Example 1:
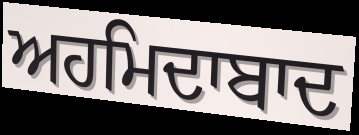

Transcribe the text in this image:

ਅਹਮਿਦਾਬਾਦ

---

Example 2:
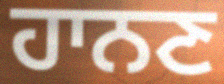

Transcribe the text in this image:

ਹਾਨਣ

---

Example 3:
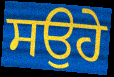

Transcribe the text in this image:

ਸਉਹੇ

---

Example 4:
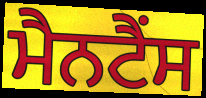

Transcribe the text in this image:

ਮੈਨਟੈਂਸ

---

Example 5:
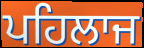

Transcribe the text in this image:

ਪਹਿਲਾਜ